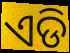
ଏଡି